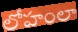
లోహంలా